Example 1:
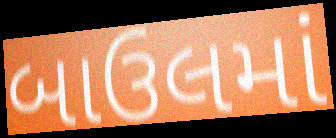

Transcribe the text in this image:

બાઉલમાં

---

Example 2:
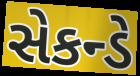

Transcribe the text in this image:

સેકન્ડે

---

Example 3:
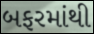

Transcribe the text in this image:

બફરમાંથી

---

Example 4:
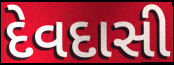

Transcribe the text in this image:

દેવદાસી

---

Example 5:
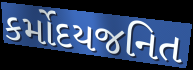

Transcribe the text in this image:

કર્મોદયજનિત